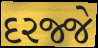
દરજ્જે